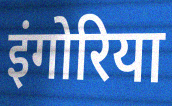
इंगोरिया